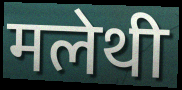
मलेथी